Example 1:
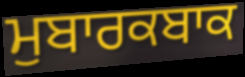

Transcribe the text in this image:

ਮੁਬਾਰਕਬਾਕ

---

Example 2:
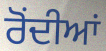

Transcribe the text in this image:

ਰੋਂਦੀਆਂ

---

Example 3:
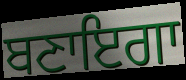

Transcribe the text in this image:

ਬਣਾਇਗਾ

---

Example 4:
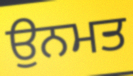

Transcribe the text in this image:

ਉਨਮਤ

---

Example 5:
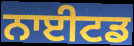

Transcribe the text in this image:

ਨਾਈਟਡ